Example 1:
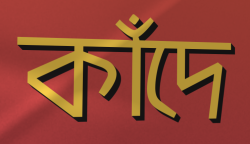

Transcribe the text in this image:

কাঁদে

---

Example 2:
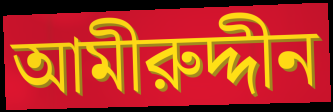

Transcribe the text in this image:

আমীরুদ্দীন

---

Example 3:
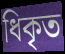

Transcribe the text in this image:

ধিকৃত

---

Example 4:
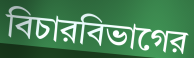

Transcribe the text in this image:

বিচারবিভাগের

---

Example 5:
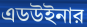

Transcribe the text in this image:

এডউইনার